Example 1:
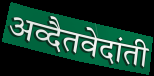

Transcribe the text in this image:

अव्दैतवेदांती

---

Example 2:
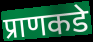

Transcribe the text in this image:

प्राणकडे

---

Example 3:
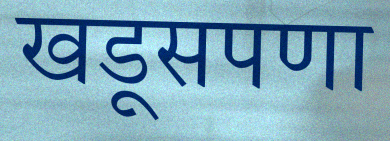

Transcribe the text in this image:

खडूसपणा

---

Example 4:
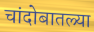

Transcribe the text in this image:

चांदोबातल्या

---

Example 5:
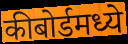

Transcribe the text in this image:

कीबोर्डमध्ये